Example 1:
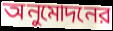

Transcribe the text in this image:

অনুমোদনের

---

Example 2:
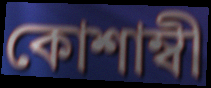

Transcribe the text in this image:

কোশাম্বী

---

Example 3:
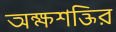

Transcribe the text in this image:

অক্ষশক্তির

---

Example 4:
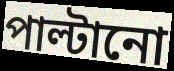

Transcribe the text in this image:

পাল্টানো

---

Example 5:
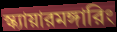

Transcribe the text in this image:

স্ক্যায়ারমঙ্গারিং